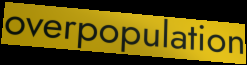
overpopulation